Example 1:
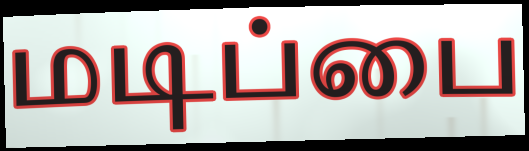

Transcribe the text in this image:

மடிப்பை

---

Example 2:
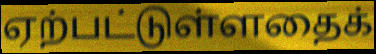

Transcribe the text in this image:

ஏற்பட்டுள்ளதைக்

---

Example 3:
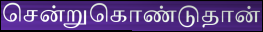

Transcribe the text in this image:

சென்றுகொண்டுதான்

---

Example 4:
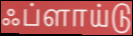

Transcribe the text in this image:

ஃப்ளாய்டு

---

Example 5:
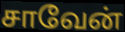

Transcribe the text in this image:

சாவேன்